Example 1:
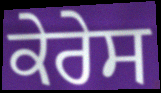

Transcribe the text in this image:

ਕੇਰੇਸ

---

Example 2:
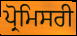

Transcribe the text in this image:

ਪ੍ਰੋਮਿਸਰੀ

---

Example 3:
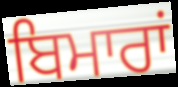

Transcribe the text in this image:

ਬਿਮਾਰਾਂ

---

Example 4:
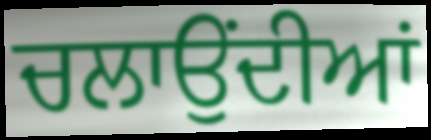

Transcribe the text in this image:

ਚਲਾਉਂਦੀਆਂ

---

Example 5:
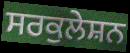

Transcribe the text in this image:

ਸਰਕੁਲੇਸ਼ਨ